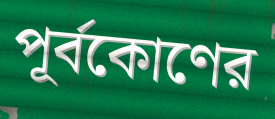
পূর্বকোণের